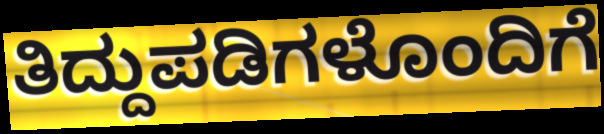
ತಿದ್ದುಪಡಿಗಳೊಂದಿಗೆ